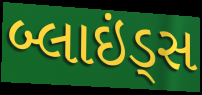
બ્લાઇંડ્સ